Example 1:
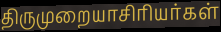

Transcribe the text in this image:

திருமுறையாசிரியர்கள்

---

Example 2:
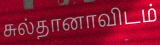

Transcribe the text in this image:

சுல்தானாவிடம்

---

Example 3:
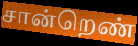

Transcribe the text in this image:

சான்றெண்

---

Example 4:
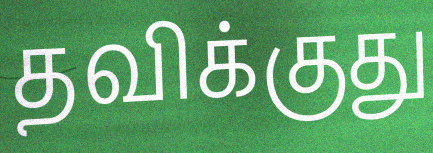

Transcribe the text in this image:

தவிக்குது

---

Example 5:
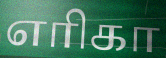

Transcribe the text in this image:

எரிகா